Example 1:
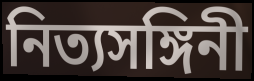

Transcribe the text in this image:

নিত্যসঙ্গিনী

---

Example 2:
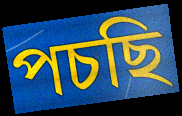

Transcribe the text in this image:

পচছি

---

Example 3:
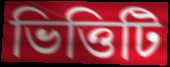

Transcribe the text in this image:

ভিত্তিটি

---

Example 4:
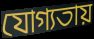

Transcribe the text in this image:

যোগ্যতায়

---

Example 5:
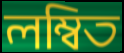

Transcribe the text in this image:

লম্বিত